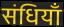
संधियाँ